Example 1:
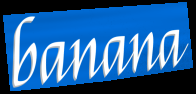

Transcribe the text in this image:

banana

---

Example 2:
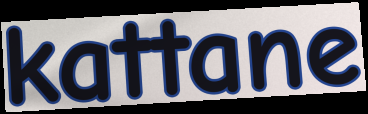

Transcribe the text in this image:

kattane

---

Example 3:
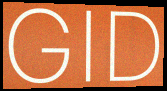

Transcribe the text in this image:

GID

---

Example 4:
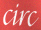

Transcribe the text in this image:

circ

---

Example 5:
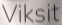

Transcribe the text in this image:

Viksit